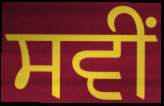
ਸਵੀਂ